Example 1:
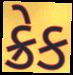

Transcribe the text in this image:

ક્રેક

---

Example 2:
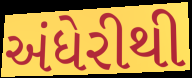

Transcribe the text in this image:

અંધેરીથી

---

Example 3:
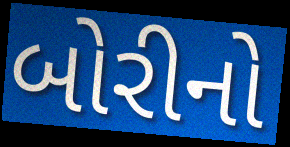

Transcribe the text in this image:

બોરીનો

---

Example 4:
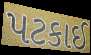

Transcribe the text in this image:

પટકાઈ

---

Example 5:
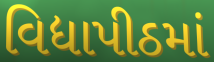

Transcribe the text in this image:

વિદ્યાપીઠમાં